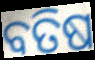
ବତିଷ